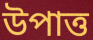
উপাত্ত